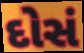
દોસં